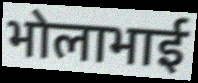
भोलाभाई